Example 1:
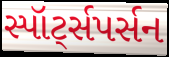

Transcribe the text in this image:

સ્પૉર્ટ્સપર્સન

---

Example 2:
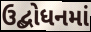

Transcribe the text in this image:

ઉદ્બોધનમાં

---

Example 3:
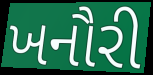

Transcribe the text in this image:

ખનૌરી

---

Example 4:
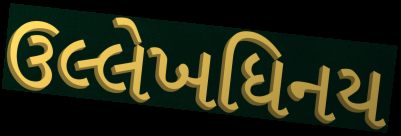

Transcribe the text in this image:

ઉલ્લેખધિનય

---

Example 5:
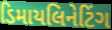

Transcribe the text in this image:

ડિમાયલિનેટિંગ